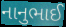
નાનુભાઈ